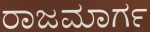
ರಾಜಮಾರ್ಗ